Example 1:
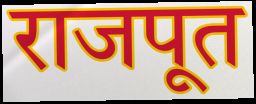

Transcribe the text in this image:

राजपूत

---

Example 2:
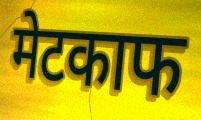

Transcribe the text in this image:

मेटकाफ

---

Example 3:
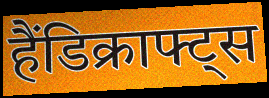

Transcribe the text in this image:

हैंडिक्राफ्ट्स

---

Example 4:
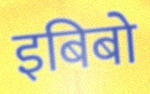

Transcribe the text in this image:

इबिबो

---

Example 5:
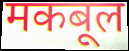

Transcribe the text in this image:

मकबूल